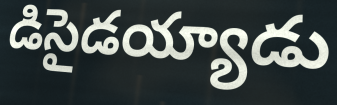
డిసైడయ్యాడు